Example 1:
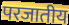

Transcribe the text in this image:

परजातीय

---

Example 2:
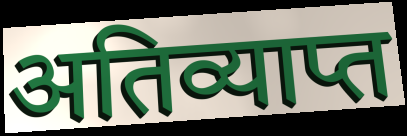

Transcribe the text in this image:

अतिव्याप्त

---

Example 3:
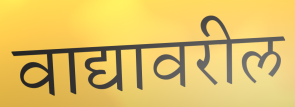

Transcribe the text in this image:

वाद्यावरील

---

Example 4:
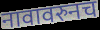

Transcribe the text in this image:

नावावरुनच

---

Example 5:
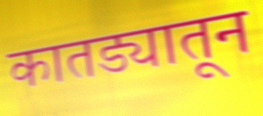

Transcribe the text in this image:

कातड्यातून